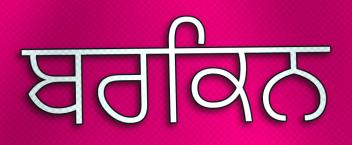
ਬਰਕਿਨ